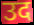
उद